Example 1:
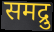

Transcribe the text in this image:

समद्रु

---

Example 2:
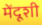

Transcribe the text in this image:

मेंदूशी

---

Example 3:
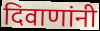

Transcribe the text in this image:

दिवाणांनी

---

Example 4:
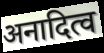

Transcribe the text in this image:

अनादित्व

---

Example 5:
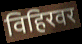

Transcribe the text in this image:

विहिरवर